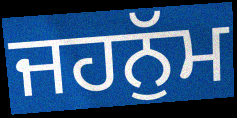
ਜਹਨੁੱਮ